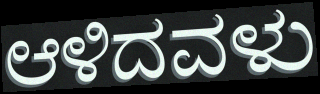
ಆಳಿದವಳು